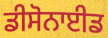
ਡੀਸੋਨਾਈਡ